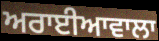
ਅਰਾਈਆਵਾਲਾ